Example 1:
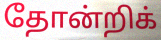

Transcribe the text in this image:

தோன்றிக்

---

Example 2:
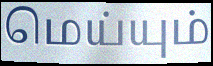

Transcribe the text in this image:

மெய்யும்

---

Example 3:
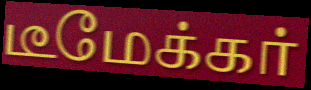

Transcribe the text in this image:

டீமேக்கர்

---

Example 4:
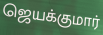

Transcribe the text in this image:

ஜெயக்குமார்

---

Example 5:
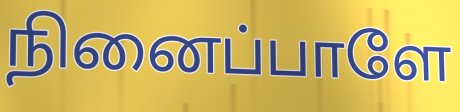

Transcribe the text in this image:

நினைப்பாளே